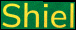
Shiel